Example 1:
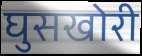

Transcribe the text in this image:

घुसखोरी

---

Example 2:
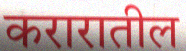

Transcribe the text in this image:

करारातील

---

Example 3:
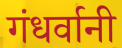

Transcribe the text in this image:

गंधर्वानी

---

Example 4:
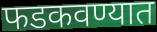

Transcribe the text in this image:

फडकवण्यात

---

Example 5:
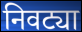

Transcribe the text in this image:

निवट्या